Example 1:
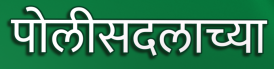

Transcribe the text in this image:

पोलीसदलाच्या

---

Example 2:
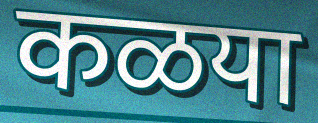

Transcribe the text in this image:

कळया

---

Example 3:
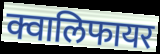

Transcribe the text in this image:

क्वालिफायर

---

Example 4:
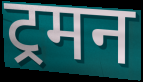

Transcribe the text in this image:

ट्रमन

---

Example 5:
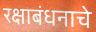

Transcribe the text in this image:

रक्षाबंधनाचे